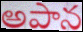
అపాన